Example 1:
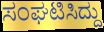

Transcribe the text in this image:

ಸಂಘಟಿಸಿದ್ದು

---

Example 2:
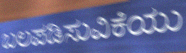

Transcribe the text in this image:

ಬಲಪಡಿಸುವಿಕೆಯು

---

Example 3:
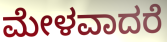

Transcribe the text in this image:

ಮೇಳವಾದರೆ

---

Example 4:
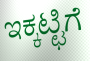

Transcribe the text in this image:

ಇಕ್ಕಟ್ಟಿಗೆ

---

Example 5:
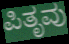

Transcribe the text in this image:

ಪಿತೃವು